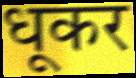
धूकर